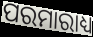
ପରମାରାଧ୍ୟ